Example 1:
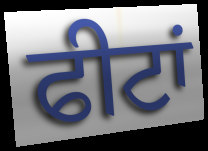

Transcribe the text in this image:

ਫੀਟਾਂ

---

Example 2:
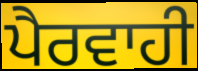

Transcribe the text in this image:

ਪੈਰਵਾਹੀ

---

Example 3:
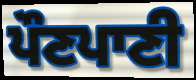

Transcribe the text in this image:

ਪੌਣਪਾਣੀ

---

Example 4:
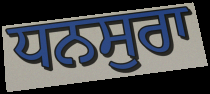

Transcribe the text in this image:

ਧਨਸੁਰਾ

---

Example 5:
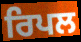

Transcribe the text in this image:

ਰਿਪਲ